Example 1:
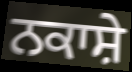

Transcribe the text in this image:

ਨਕਾਸ਼ੇ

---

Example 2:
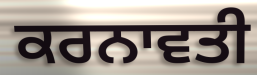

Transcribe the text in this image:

ਕਰਨਾਵਤੀ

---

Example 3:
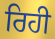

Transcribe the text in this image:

ਰਿਹੀ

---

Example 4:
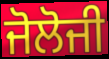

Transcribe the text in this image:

ਜੋਲੋਜੀ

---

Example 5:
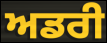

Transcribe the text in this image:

ਅਡਰੀ